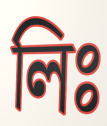
লিঃ